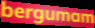
bergumam